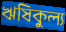
ঋষিকুল্য